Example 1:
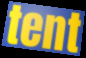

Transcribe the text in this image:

tent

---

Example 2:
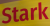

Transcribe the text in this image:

Stark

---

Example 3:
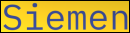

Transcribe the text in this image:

Siemen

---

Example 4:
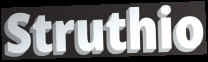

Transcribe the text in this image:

Struthio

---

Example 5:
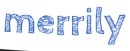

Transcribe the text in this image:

merrily